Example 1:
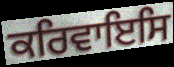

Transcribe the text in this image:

ਕਰਿਵਾਇਸਿ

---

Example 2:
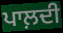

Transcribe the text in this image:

ਪਾਲ਼ਦੀ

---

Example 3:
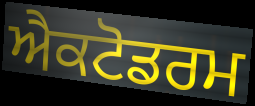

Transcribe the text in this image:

ਐਕਟੋਡਰਮ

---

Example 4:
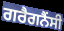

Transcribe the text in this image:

ਗਰੈਗਨੈਂਸੀ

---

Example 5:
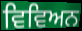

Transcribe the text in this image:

ਵਿਵਿਅਨ